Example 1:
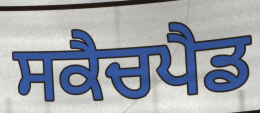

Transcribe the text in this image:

ਸਕੈਚਪੈਡ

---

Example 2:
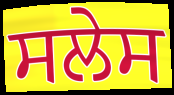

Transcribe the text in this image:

ਸਲੇਸ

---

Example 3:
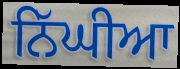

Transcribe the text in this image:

ਨਿੱਘੀਆ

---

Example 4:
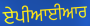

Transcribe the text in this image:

ਏਪੀਆਈਆਰ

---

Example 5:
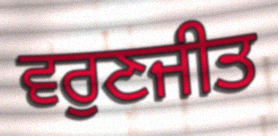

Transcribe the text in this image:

ਵਰੁਣਜੀਤ